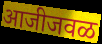
आजीजवळ